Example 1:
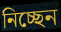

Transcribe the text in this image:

নিচ্ছেন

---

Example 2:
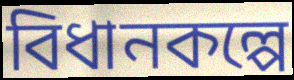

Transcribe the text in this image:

বিধানকল্পে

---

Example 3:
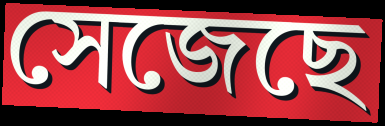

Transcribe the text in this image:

সেজেছে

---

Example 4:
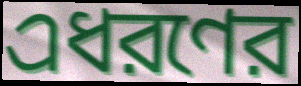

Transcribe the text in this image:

এধরণের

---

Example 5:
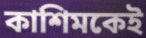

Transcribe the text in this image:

কাশিমকেই